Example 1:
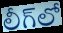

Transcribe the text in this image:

లీగ్‌లో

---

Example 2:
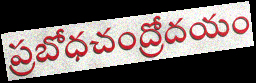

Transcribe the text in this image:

ప్రబోధచంద్రోదయం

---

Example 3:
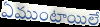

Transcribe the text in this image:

ఏముంటాయిలే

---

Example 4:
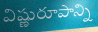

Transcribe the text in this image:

విష్ణురూపాన్ని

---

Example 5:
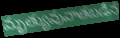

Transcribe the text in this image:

మృత్యువువాతబడిన